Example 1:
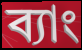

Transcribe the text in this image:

ব্যাং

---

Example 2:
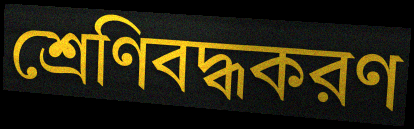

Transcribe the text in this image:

শ্রেণিবদ্ধকরণ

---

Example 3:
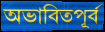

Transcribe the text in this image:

অভাবিতপূর্ব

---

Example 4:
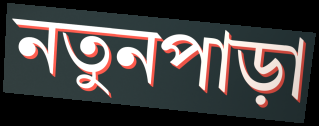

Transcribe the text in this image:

নতুনপাড়া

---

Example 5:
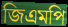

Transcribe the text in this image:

জিএমপি